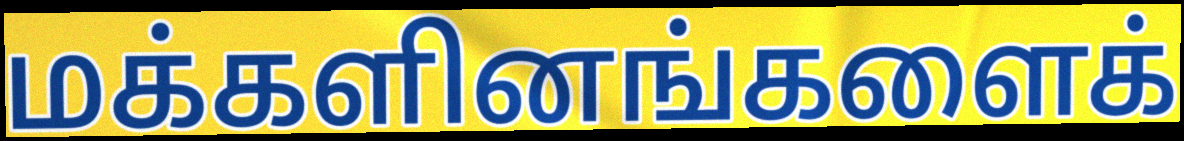
மக்களினங்களைக்